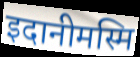
इदानीमस्मि